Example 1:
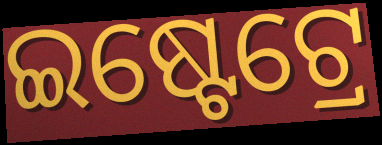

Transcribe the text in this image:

ଇଷ୍ଟେଟ୍ରେ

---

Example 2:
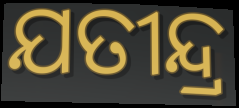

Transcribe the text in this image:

ଯତୀନ୍ଦ୍ର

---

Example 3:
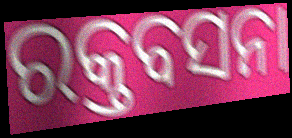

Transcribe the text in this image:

ରକ୍ତବସନା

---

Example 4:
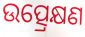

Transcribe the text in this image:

ଉତ୍ପ୍ରେକ୍ଷଣ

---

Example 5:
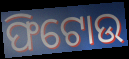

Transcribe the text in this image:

ଫିଟୋଉ